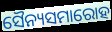
ସୈନ୍ୟସମାରୋହ